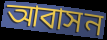
আবাসন